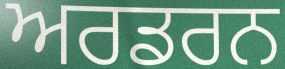
ਅਰਡਰਨ